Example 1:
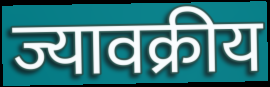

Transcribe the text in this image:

ज्यावक्रीय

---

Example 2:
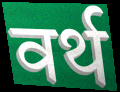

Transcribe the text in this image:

वर्थ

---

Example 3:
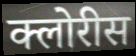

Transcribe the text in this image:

क्लोरीस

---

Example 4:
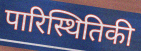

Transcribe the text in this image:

पारिस्थितिकी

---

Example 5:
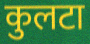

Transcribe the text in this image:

कुलटा